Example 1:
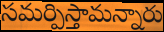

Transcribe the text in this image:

సమర్పిస్తామన్నారు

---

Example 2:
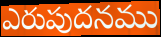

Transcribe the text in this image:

ఎరుపుదనము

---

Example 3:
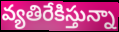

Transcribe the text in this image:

వ్యతిరేకిస్తున్నా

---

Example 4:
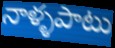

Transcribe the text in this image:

నాళ్ళపాటు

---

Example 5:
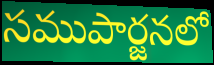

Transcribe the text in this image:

సముపార్జనలో